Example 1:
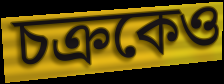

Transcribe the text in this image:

চক্রকেও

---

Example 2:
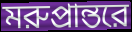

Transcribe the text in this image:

মরুপ্রান্তরে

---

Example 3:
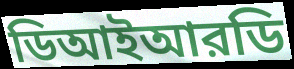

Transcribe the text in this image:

ডিআইআরডি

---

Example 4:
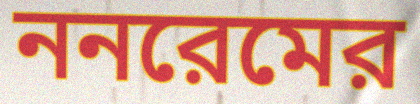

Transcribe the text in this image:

ননরেমের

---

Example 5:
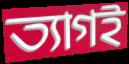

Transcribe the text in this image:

ত্যাগই